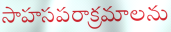
సాహసపరాక్రమాలను